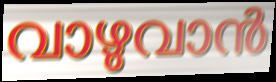
വാഴുവാൻ